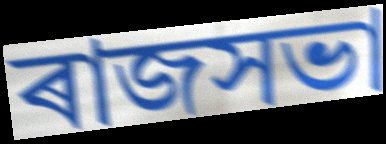
ৰাজসভা